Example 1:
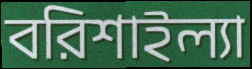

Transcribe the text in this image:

বরিশাইল্যা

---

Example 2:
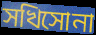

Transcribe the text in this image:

সখিসোনা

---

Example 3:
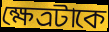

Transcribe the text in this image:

ক্ষেত্রটাকে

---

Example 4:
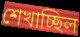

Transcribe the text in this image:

শেখাচ্ছিল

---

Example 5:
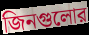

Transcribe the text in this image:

জিনগুলোর